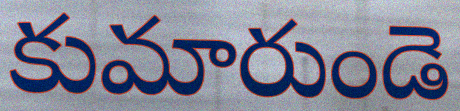
కుమారుండె